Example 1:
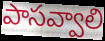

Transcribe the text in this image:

పాసవ్వాలి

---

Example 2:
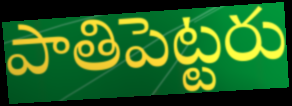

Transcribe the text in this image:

పాతిపెట్టరు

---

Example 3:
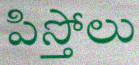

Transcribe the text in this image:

పిస్తోలు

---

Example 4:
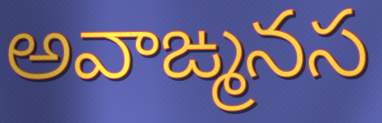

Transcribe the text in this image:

అవాఙ్మనస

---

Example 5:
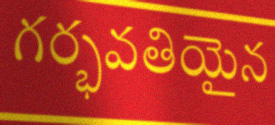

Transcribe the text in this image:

గర్భవతియైన